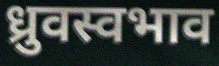
ध्रुवस्वभाव